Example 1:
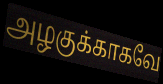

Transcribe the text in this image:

அழகுக்காகவே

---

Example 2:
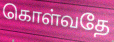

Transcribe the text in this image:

கொள்வதே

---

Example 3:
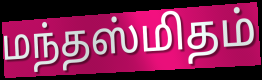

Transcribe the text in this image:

மந்தஸ்மிதம்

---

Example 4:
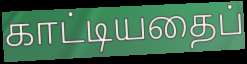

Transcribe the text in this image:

காட்டியதைப்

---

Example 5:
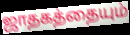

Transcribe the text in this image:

ஜாதகத்தையும்